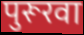
पुरूरवा